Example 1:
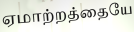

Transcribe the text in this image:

ஏமாற்றத்தையே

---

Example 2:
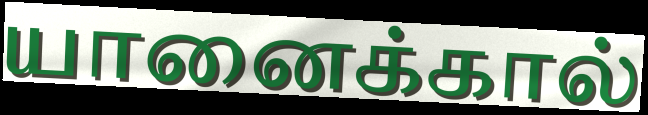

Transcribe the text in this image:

யானைக்கால்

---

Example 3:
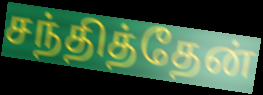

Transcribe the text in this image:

சந்தித்தேன்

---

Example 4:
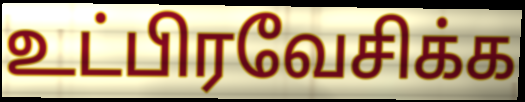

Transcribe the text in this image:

உட்பிரவேசிக்க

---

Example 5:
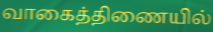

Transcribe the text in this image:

வாகைத்திணையில்